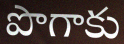
పొగాకు